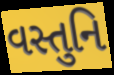
વસ્તુનિ